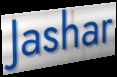
Jashar